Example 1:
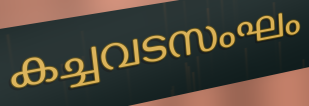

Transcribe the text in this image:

കച്ചവടസംഘം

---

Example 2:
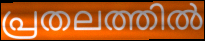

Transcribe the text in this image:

പ്രതലത്തിൽ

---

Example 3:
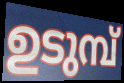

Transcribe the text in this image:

ഉടുമ്പ്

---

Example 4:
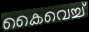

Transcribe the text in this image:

കൈവെച്ച്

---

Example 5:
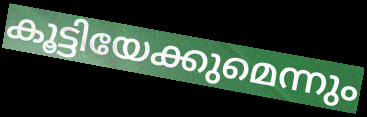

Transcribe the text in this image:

കൂട്ടിയേക്കുമെന്നും